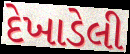
દેખાડેલી